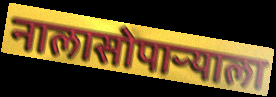
नालासोपाऱ्याला